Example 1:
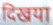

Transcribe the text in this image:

दिखया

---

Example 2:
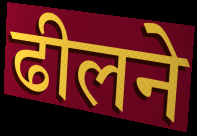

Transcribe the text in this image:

ढीलने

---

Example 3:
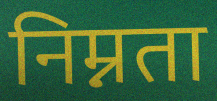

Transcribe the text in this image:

निम्नता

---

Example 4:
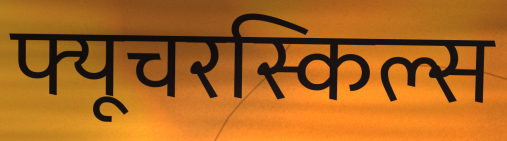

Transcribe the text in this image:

फ्यूचरस्किल्स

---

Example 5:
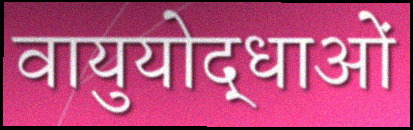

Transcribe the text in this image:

वायुयोद्धाओं